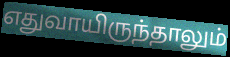
எதுவாயிருந்தாலும்